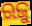
ଋଜୁ